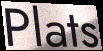
Plats